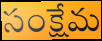
సంక్షేమ